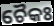
ଚୈକଃ